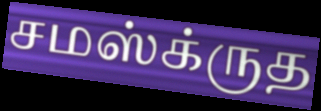
சமஸ்க்ருத